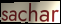
sachar